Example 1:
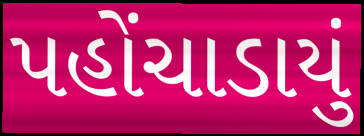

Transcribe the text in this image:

પહોંચાડાયું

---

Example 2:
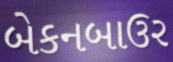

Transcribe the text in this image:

બેકનબાઉર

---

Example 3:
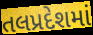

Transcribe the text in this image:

તલપ્રદેશમાં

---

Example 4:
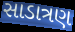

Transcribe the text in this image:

સાડાત્રણ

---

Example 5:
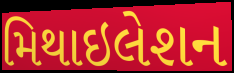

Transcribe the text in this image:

મિથાઇલેશન